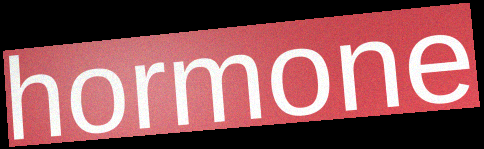
hormone